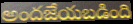
అందజేయబడింది